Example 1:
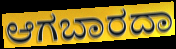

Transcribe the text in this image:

ಆಗಬಾರದಾ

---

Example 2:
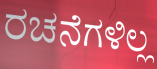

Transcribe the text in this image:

ರಚನೆಗಳಿಲ್ಲ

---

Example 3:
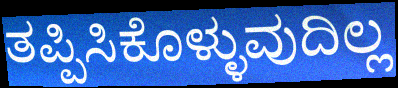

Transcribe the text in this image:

ತಪ್ಪಿಸಿಕೊಳ್ಳುವುದಿಲ್ಲ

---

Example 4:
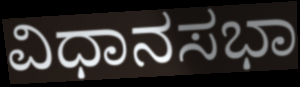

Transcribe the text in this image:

ವಿಧಾನಸಭಾ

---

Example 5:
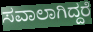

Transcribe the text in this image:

ಸವಾಲಾಗಿದ್ದರೆ